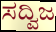
ಸದ್ವಿಜ